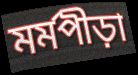
মর্মপীড়া